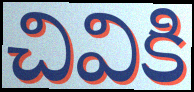
చివికి